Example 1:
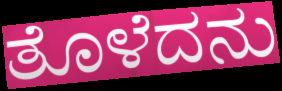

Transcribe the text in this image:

ತೊಳೆದನು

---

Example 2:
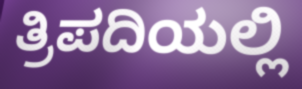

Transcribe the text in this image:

ತ್ರಿಪದಿಯಲ್ಲಿ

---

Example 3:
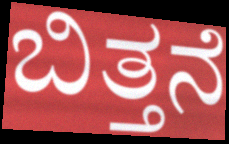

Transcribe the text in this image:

ಬಿತ್ತನೆ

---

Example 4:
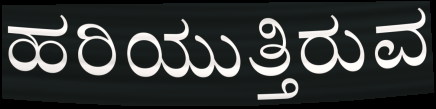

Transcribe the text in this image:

ಹರಿಯುತ್ತಿರುವ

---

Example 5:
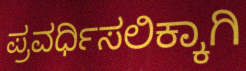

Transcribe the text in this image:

ಪ್ರವರ್ಧಿಸಲಿಕ್ಕಾಗಿ